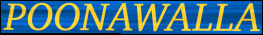
POONAWALLA